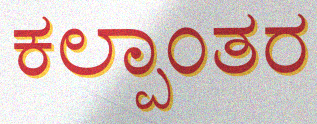
ಕಲ್ಪಾಂತರ